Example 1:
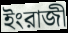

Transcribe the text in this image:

ইংরাজী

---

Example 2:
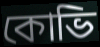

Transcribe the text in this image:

কোভি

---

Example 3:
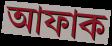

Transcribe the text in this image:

আফাক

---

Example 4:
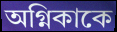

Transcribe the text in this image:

অগ্নিকাকে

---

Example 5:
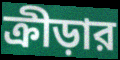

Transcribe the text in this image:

ক্রীড়ার